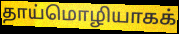
தாய்மொழியாகக்